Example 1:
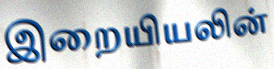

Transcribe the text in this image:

இறையியலின்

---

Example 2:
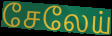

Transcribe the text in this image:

சேலேய்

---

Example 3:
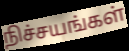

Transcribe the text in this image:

நிச்சயங்கள்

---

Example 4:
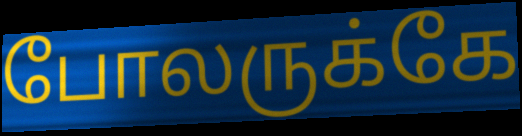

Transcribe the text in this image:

போலருக்கே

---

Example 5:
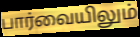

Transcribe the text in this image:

பார்வையிலும்